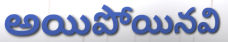
అయిపోయినవి